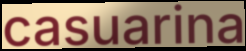
casuarina